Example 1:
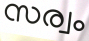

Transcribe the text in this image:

സര്വം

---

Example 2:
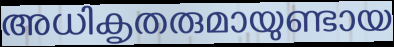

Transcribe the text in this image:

അധികൃതരുമായുണ്ടായ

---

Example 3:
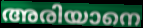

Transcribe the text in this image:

അരിയാനെ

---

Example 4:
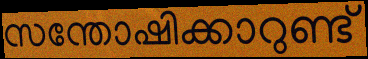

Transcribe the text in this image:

സന്തോഷിക്കാറുണ്ട്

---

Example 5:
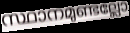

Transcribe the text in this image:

സ്ഥാനമുണ്ടല്ലോ